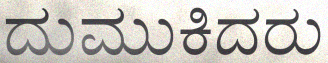
ದುಮುಕಿದರು